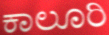
ಕಾಲೂರಿ